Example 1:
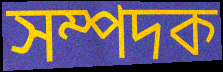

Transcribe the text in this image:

সম্পদক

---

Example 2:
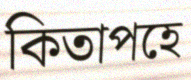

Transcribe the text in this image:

কিতাপহে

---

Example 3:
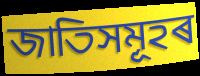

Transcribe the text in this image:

জাতিসমূহৰ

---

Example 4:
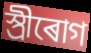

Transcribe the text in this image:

স্ত্ৰীৰোগ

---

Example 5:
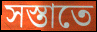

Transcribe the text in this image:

সস্তাতে